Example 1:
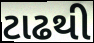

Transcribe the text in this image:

ટાઢથી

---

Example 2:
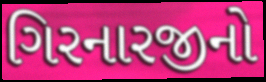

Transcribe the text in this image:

ગિરનારજીનો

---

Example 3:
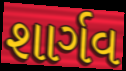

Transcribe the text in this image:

શાર્ગવ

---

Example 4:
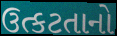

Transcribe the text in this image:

ઉત્કટતાનો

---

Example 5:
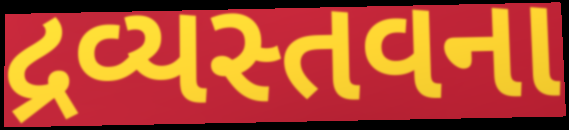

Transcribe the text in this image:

દ્રવ્યસ્તવના